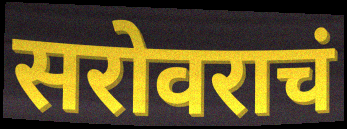
सरोवराचं